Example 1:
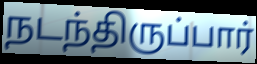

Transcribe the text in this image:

நடந்திருப்பார்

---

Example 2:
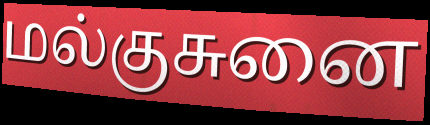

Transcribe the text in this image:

மல்குசுனை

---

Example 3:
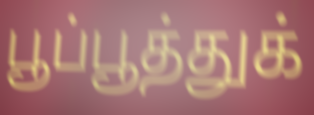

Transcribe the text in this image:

பூப்பூத்துக்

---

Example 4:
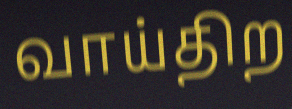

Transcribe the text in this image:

வாய்திற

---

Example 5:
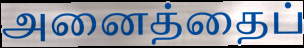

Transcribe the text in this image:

அனைத்தைப்